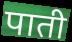
पाती